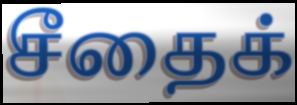
சீதைக்